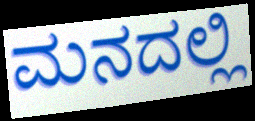
ಮನದಲ್ಲಿ